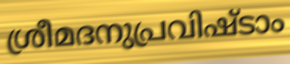
ശ്രീമദനുപ്രവിഷ്ടാം